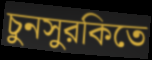
চুনসুরকিতে